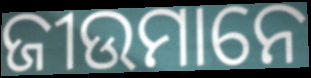
ଜୀଉମାନେ